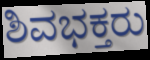
ಶಿವಭಕ್ತರು